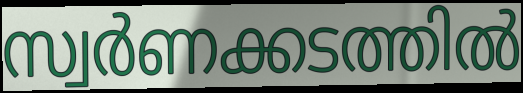
സ്വർണക്കടത്തിൽ